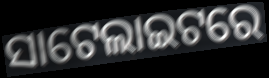
ସାଟେଲାଇଟରେ